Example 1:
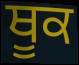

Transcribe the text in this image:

ਥੂਕ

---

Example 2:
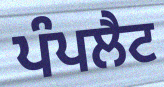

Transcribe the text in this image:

ਪੰਪਲੈਟ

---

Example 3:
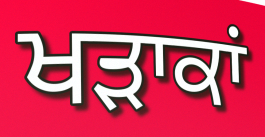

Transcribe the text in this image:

ਖੜਾਕਾਂ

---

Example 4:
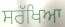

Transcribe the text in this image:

ਸਰੱਖਿਆ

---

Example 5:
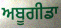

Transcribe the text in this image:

ਅਬੂਗੀਡਾ